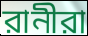
রানীরা